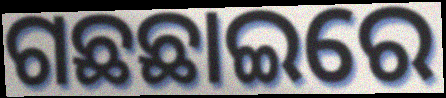
ଗଛଛାଇରେ